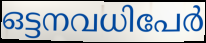
ഒട്ടനവധിപേർ